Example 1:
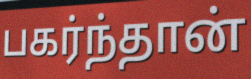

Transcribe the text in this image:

பகர்ந்தான்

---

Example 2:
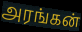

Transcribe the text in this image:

அரங்கன்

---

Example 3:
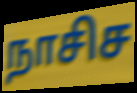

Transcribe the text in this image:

நாசிச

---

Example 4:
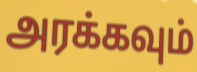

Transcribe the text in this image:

அரக்கவும்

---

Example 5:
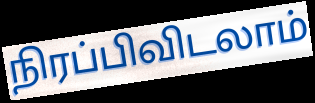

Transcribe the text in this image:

நிரப்பிவிடலாம்